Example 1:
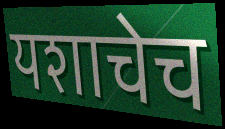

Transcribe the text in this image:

यशाचेच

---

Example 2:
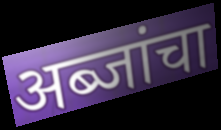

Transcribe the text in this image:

अब्जांचा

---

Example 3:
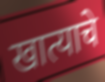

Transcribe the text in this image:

खात्याचे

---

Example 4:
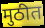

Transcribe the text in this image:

मुठीत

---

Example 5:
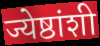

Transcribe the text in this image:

ज्येष्ठांशी